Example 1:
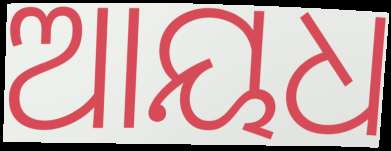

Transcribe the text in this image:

ଆୟଧ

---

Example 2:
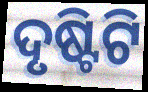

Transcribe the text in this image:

ଦୃଷ୍ଟିଟି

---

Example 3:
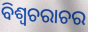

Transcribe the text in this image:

ବିଶ୍ଵଚରାଚର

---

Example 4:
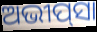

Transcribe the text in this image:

ଅଭୀପ୍‌ସା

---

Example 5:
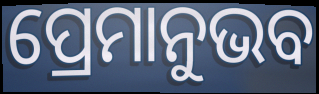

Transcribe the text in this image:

ପ୍ରେମାନୁଭବ